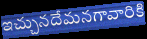
ఇచ్చునదేమనగావారికి